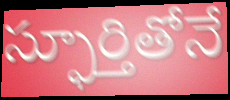
స్ఫూర్తితోనే